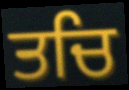
ਤਚਿ